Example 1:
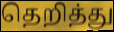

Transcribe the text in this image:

தெறித்து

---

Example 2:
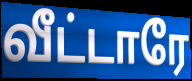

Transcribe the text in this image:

வீட்டாரே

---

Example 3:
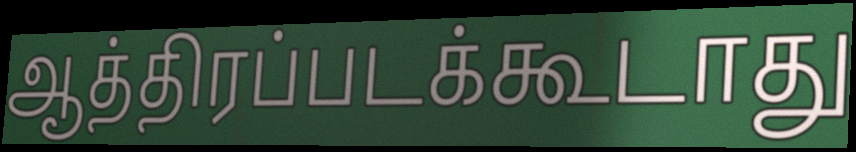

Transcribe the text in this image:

ஆத்திரப்படக்கூடாது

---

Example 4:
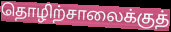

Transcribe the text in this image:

தொழிற்சாலைக்குத்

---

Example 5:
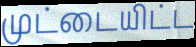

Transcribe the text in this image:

முட்டையிட்ட